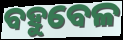
ବହୁବେଳ